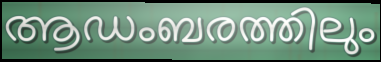
ആഡംബരത്തിലും